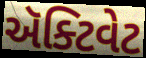
ઍક્ટિવેટ